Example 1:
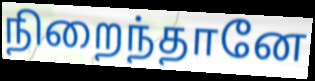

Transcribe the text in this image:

நிறைந்தானே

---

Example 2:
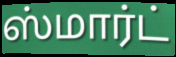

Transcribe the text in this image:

ஸ்மார்ட்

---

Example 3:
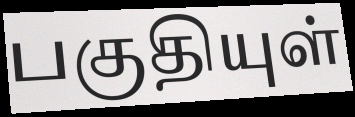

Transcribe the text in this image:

பகுதியுள்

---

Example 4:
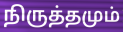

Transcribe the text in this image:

நிருத்தமும்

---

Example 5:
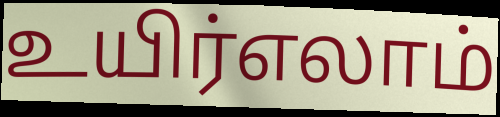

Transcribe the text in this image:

உயிர்எலாம்